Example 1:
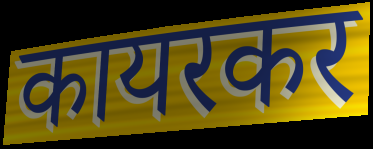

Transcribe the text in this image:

कायरकर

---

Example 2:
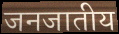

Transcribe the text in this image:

जनजातीय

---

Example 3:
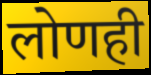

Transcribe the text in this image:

लोणही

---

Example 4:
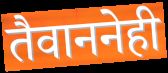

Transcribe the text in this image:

तैवाननेही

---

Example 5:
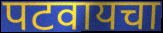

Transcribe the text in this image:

पटवायचा